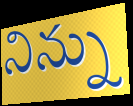
నిన్ను